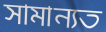
সামান্যত